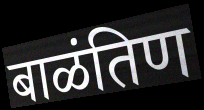
बाळंतिण